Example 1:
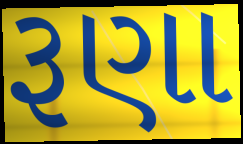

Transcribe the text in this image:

રૂણા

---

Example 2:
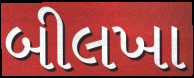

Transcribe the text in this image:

બીલખા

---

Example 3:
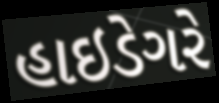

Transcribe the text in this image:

હાઇડેગરે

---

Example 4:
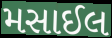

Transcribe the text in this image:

મસાઈલ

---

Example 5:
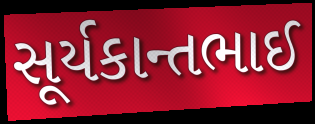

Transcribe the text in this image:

સૂર્યકાન્તભાઈ